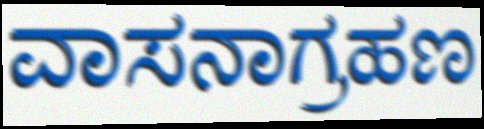
ವಾಸನಾಗ್ರಹಣ